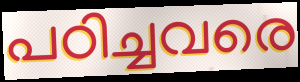
പഠിച്ചവരെ